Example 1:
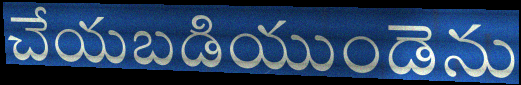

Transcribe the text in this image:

చేయబడియుండెను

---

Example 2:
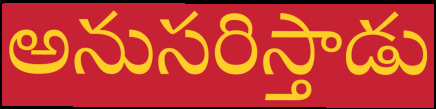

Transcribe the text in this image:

అనుసరిస్తాడు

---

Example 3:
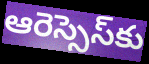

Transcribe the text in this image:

ఆరెస్సెస్‌కు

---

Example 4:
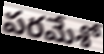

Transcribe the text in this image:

పరమేశో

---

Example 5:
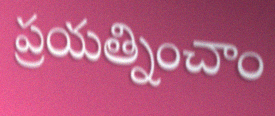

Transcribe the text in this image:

ప్రయత్నించాం